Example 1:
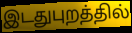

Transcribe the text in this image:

இடதுபுறத்தில்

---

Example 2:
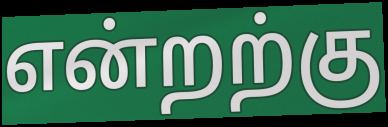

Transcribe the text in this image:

என்றற்கு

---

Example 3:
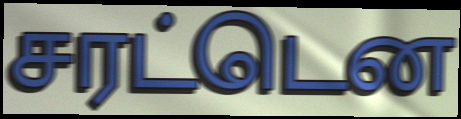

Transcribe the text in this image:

சரட்டென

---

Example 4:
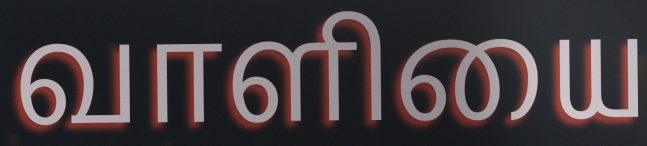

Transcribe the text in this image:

வாளியை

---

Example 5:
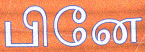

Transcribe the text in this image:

பினே